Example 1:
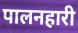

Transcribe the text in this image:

पालनहारी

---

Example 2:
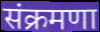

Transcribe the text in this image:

संक्रमणा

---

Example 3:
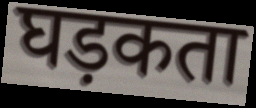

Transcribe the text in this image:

घड़कता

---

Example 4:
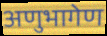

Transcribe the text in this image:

अणुभागेण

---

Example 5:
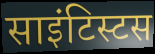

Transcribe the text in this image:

साइंटिस्टस